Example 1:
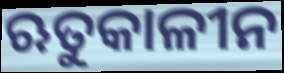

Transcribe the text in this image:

ଋତୁକାଳୀନ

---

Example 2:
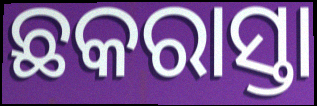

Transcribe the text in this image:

ଛକରାସ୍ତା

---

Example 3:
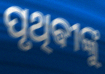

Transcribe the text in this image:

ପୃଥିଵୀଙ୍କୁ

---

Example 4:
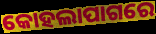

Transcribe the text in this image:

କୋହଲାପାଗରେ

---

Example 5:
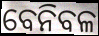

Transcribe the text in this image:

ବେନିବଳ